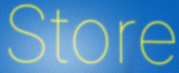
Store